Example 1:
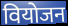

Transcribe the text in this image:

वियोजन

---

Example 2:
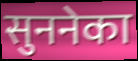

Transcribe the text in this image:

सुननेका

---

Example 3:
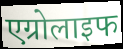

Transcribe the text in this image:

एग्रोलाइफ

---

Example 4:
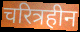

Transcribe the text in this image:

चरित्रहीन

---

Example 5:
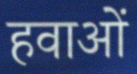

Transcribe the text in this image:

हवाओं